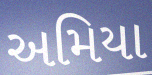
અમિયા